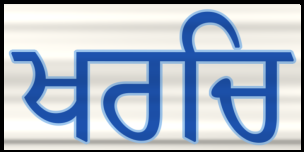
ਖਰਚਿ